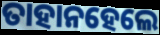
ତାହାନହେଲେ